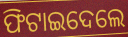
ଫିଟାଇଦେଲେ